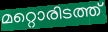
മറ്റൊരിടത്ത്